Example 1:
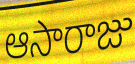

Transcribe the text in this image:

ఆసారాజు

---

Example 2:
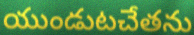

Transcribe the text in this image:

యుండుటచేతను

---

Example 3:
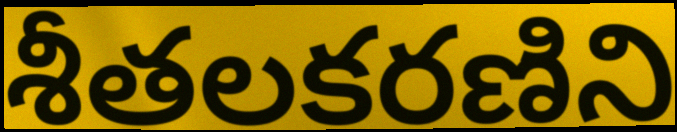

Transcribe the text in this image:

శీతలకరణిని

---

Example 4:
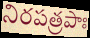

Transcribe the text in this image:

నిరపత్రపాః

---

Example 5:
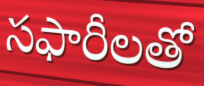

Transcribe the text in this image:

సఫారీలతో